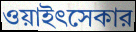
ওয়াইৎসেকার